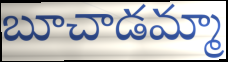
బూచాడమ్మా